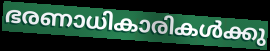
ഭരണാധികാരികൾക്കു